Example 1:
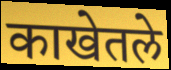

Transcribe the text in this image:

काखेतले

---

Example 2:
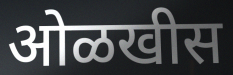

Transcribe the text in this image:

ओळखीस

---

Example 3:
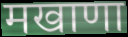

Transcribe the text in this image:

मखाणा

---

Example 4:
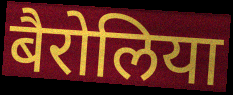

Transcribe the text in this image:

बैरोलिया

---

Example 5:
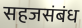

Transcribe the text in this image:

सहजसंबंध